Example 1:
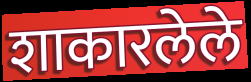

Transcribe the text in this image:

शाकारलेले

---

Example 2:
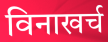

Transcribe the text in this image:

विनाखर्च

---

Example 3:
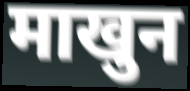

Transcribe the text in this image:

माखुन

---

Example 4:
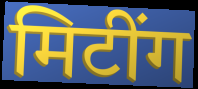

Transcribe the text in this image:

मिटींग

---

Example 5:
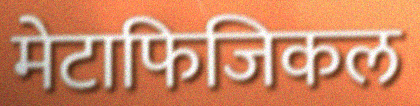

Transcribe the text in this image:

मेटाफिजिकल